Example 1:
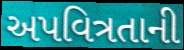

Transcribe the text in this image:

અપવિત્રતાની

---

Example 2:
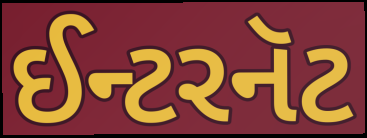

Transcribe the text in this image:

ઈન્ટરનૅટ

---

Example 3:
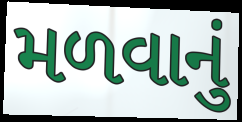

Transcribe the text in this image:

મળવાનું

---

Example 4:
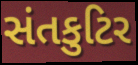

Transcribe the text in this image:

સંતકુટિર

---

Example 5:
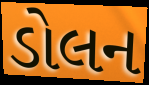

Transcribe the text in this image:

ડોલન